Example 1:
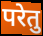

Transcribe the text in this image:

परेतु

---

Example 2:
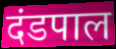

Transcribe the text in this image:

दंडपाल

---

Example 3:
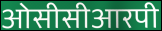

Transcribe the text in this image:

ओसीसीआरपी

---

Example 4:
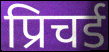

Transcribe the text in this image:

प्रिचर्ड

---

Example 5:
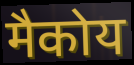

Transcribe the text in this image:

मैकोय